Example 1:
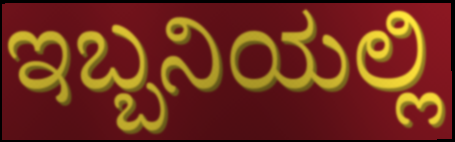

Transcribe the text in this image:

ಇಬ್ಬನಿಯಲ್ಲಿ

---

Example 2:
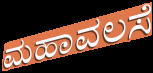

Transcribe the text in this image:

ಮಹಾವಲಸೆ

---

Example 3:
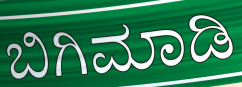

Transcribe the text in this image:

ಬಿಗಿಮಾಡಿ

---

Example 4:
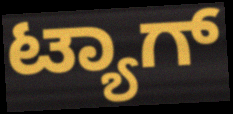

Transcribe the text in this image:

ಟ್ಯಾಗ್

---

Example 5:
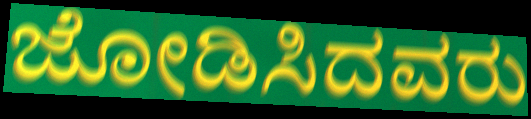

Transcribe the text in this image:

ಜೋಡಿಸಿದವರು